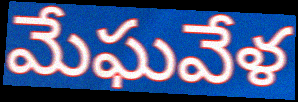
మేఘవేళ